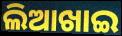
ଲିଆଖାଇ